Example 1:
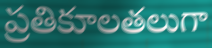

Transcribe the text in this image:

ప్రతికూలతలుగా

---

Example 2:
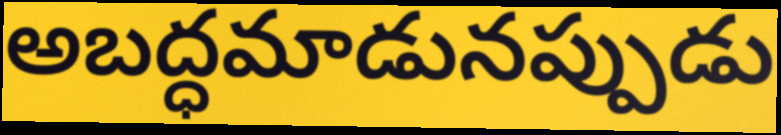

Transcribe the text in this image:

అబద్ధమాడునప్పుడు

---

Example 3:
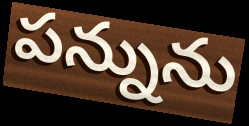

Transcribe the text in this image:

పన్నును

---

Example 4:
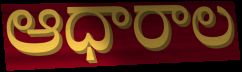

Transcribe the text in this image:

ఆధారాల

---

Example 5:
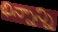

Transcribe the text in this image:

భిన్నాన్ని